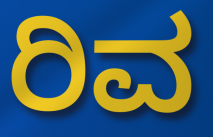
ರಿವ